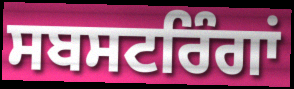
ਸਬਸਟਰਿੰਗਾਂ